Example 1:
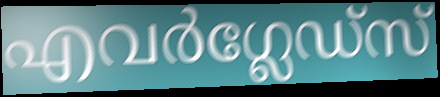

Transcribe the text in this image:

എവർഗ്ലേഡ്സ്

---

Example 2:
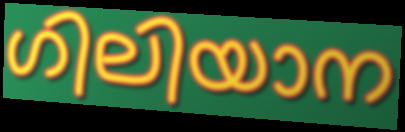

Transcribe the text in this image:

ഗിലിയാന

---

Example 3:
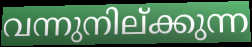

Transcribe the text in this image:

വന്നുനില്ക്കുന്ന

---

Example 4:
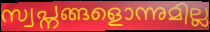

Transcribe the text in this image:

സ്വപ്നങ്ങളൊന്നുമില്ല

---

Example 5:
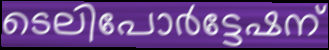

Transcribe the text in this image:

ടെലിപോർട്ടേഷന്